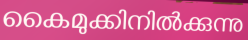
കൈമുക്കിനിൽക്കുന്നു